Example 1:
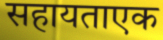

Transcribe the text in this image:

सहायताएक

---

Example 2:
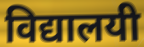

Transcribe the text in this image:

विद्यालयी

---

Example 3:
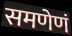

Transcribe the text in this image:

समणेणं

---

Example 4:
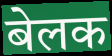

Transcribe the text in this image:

बेलक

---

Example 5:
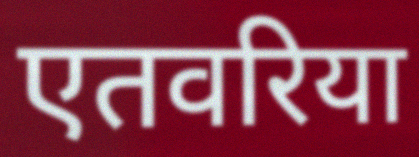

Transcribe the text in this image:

एतवरिया